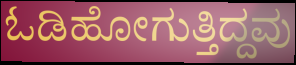
ಓಡಿಹೋಗುತ್ತಿದ್ದವು